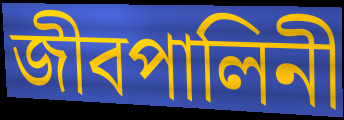
জীবপালিনী